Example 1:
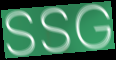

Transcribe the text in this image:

SSG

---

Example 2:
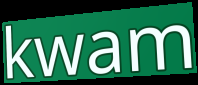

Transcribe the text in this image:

kwam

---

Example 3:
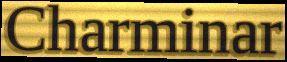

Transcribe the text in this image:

Charminar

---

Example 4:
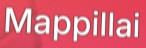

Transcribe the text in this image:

Mappillai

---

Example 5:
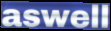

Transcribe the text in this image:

aswell